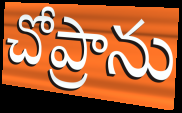
చోప్రాను